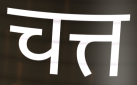
चत्त